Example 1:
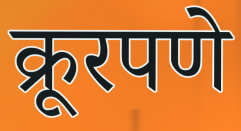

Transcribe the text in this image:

क्रूरपणे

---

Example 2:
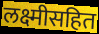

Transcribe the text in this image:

लक्ष्मीसहित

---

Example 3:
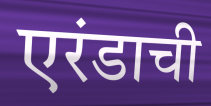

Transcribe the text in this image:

एरंडाची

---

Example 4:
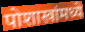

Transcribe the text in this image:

पोशाखांमध्ये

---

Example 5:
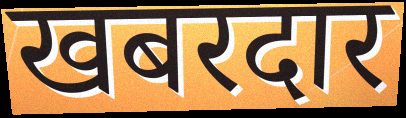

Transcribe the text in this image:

खबरदार